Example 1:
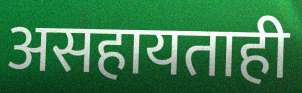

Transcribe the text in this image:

असहायताही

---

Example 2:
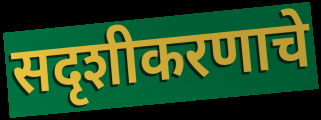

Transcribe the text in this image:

सदृशीकरणाचे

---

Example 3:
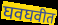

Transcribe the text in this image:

घवघवीत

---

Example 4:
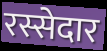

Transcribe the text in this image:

रस्सेदार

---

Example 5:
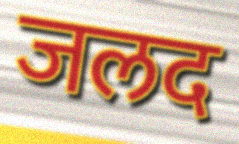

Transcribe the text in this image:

जलद